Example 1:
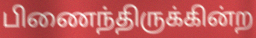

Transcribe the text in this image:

பிணைந்திருக்கின்ற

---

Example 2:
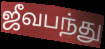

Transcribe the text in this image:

ஜீவபந்து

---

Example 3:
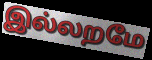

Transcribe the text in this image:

இல்லறமே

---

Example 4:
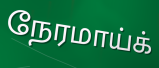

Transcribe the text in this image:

நேரமாய்க்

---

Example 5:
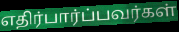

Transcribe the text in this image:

எதிர்பார்ப்பவர்கள்